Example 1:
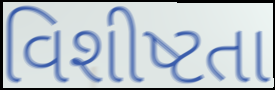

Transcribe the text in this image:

વિશીષ્ટતા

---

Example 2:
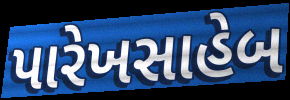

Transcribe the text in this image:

પારેખસાહેબ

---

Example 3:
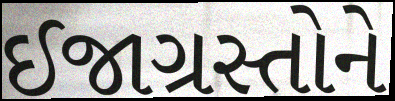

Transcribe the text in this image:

ઈજાગ્રસ્તોને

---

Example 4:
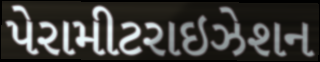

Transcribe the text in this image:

પેરામીટરાઇઝેશન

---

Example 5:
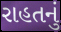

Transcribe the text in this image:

રાહતનું